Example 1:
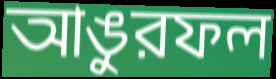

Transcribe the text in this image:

আঙুরফল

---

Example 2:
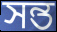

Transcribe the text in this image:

সন্ত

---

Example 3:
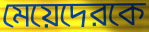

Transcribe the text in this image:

মেয়েদেরকে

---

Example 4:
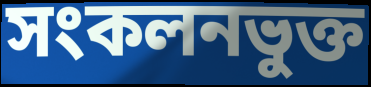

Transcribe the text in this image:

সংকলনভুক্ত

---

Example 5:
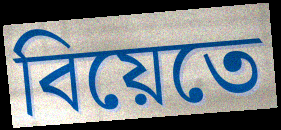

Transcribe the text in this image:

বিয়েতে